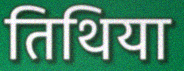
तिथिया